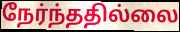
நேர்ந்ததில்லை